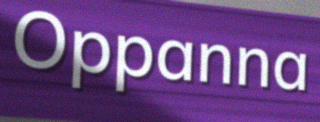
Oppanna